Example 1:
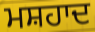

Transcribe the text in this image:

ਮਸ਼ਹਾਦ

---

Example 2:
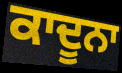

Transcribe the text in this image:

ਕਾਦੂਨਾ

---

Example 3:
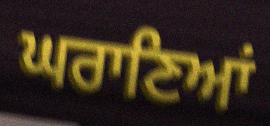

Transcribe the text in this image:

ਘਰਾਣਿਆਂ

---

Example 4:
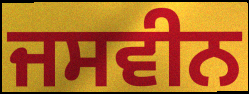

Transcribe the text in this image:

ਜਸਵੀਨ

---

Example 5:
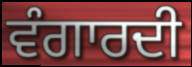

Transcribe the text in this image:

ਵੰਗਾਰਦੀ